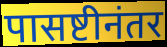
पासष्टीनंतर